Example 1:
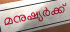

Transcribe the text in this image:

മനുഷ്യർക്ക്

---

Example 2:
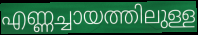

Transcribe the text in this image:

എണ്ണച്ചായത്തിലുള്ള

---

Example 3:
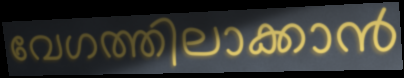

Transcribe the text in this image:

വേഗത്തിലാക്കാൻ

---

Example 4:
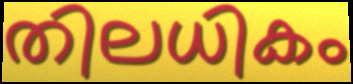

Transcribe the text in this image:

തിലധികം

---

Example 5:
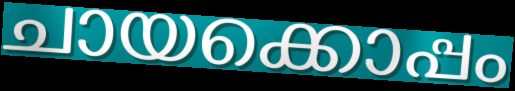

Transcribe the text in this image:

ചായക്കൊപ്പം